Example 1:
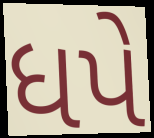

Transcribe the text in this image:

ધપે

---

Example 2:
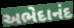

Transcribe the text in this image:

અભેદાનંદ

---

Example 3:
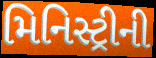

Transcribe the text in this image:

મિનિસ્ટ્રીની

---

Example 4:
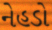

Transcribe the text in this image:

નેહડો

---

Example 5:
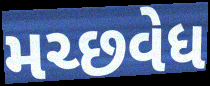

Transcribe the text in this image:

મચ્છવેધ